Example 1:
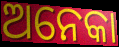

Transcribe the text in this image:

ଅନେକା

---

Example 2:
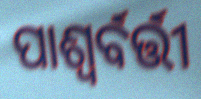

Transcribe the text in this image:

ପାଶ୍ୱର୍ବର୍ତ୍ତୀ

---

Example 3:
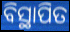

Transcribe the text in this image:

ବିସ୍ଥାପିତ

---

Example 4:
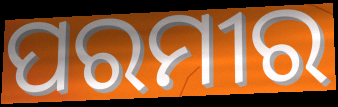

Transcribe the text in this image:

ପରମୀର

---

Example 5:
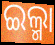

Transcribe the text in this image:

ଇଲ୍ମା